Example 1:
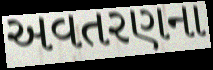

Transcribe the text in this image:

અવતરણના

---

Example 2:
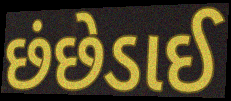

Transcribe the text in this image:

છંછેડાઈ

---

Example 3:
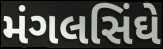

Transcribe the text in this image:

મંગલસિંઘે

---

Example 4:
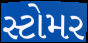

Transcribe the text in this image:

સ્ટોમર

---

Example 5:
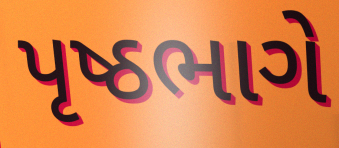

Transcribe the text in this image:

પૃષ્ઠભાગે